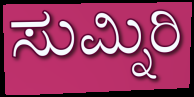
ಸುಮ್ನಿರಿ